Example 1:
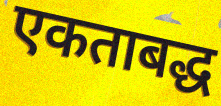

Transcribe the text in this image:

एकताबद्ध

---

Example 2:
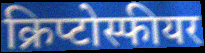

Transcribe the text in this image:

क्रिप्टोस्फीयर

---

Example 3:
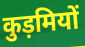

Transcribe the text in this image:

कुड़मियों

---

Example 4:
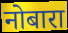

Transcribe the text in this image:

नोबारा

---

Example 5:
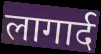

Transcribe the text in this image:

लागार्द